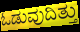
ಓಡುವುದಿತ್ತು